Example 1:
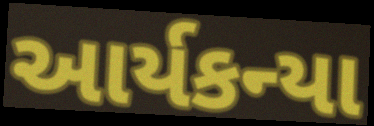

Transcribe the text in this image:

આર્યકન્યા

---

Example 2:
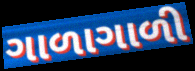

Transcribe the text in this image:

ગાળાગાળી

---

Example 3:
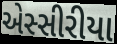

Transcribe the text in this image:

એસ્સીરીયા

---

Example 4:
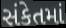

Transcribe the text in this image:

સંકેતમાં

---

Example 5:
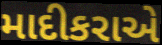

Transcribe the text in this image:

માદીકરાએ